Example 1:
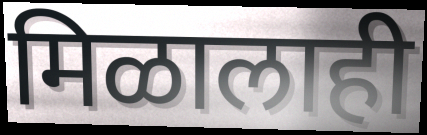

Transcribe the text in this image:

मिळालाही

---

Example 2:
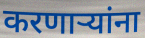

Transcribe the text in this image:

करणार्‍यांना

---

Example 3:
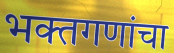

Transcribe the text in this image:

भक्तगणांचा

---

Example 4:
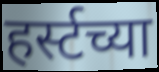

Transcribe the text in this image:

हर्स्टच्या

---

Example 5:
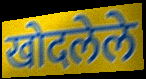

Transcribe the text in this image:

खोदलेले